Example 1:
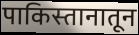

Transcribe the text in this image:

पाकिस्तानातून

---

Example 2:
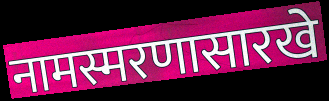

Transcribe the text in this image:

नामस्मरणासारखे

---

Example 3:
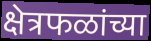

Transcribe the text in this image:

क्षेत्रफळांच्या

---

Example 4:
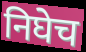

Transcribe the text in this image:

निघेच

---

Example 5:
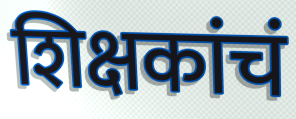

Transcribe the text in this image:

शिक्षकांचं